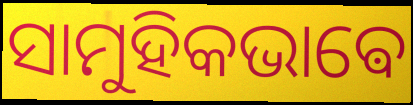
ସାମୁହିକଭାଵେ